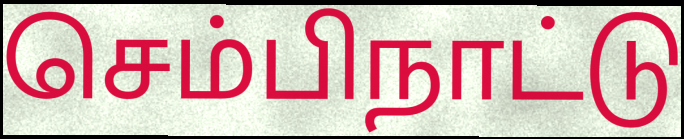
செம்பிநாட்டு